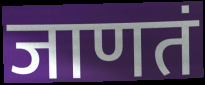
जाणतं